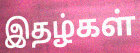
இதழ்கள்